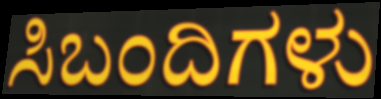
ಸಿಬಂದಿಗಳು